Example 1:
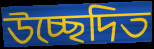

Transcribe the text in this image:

উচ্ছেদিত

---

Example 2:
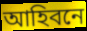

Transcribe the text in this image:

আহিবনে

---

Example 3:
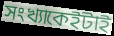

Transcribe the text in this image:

সংখ্যাকেইটাই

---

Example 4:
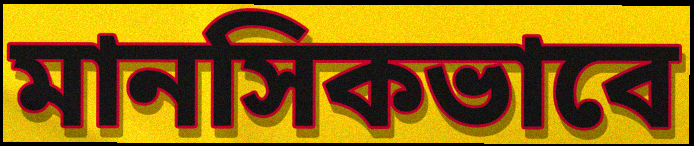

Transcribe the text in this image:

মানসিকভাবে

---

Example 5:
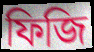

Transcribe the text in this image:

ফিজি